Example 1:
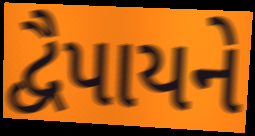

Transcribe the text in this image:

દ્વૈપાયને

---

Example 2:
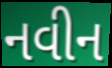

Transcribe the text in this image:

નવીન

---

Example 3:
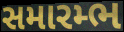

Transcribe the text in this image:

સમારમ્ભ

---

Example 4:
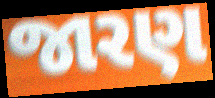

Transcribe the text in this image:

જારણ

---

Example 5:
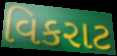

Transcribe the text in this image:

વિકરાટ